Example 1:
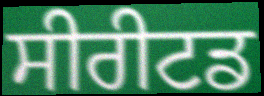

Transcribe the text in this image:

ਸੀਰੀਟਡ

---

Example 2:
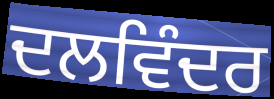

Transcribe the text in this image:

ਦਲਵਿੰਦਰ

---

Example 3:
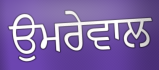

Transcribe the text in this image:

ਉਮਰੇਵਾਲ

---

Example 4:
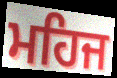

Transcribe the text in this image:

ਮਹਿਜ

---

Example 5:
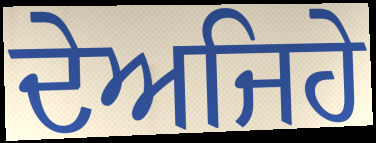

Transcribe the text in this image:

ਦੇਅਜਿਹੇ